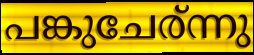
പങ്കുചേര്ന്നു